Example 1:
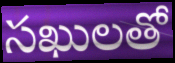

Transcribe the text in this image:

సఖులతో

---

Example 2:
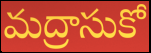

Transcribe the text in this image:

మద్రాసుకో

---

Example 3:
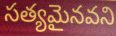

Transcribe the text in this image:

సత్యమైనవని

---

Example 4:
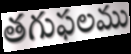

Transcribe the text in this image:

తగుఫలము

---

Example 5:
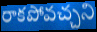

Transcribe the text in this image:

రాకపోవచ్చని